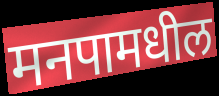
मनपामधील